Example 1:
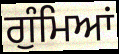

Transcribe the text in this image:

ਗੁੰਮਿਆਂ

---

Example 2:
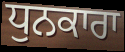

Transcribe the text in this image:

ਧੁਨਕਾਰਾ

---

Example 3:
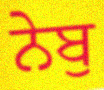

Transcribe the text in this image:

ਨੇਬੁ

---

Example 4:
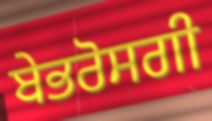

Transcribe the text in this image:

ਬੇਭਰੋਸਗੀ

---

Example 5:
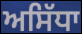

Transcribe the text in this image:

ਅਸਿੱਧਾ